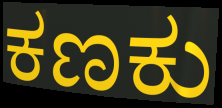
ಕಣಕು